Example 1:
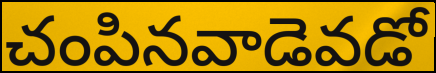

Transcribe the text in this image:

చంపినవాడెవడో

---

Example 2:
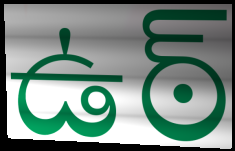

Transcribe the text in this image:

ఉఠ్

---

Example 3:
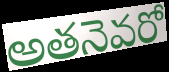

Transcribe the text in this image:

అతనెవరో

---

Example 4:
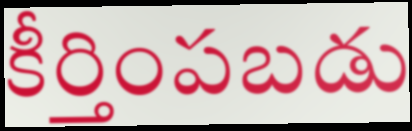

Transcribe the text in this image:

కీర్తింపబడు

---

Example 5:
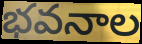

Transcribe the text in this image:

భవనాల